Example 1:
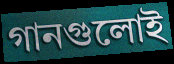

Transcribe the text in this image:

গানগুলোই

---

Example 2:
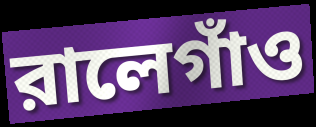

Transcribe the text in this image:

রালেগাঁও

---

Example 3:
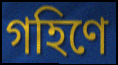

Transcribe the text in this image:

গহিণে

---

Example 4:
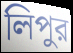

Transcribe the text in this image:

লিপুর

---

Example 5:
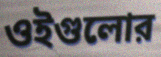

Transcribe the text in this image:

ওইগুলোর